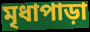
মৃধাপাড়া